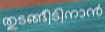
തുടങ്ങീടിനാൻ